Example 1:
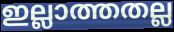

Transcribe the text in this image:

ഇല്ലാത്തതല്ല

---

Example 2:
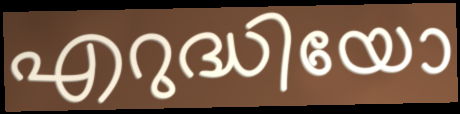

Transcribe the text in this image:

എറുദ്ധിയോ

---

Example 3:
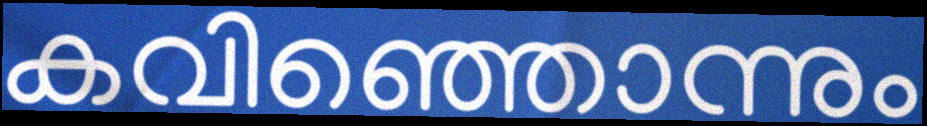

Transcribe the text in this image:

കവിഞ്ഞൊന്നും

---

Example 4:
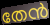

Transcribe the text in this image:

തേൻ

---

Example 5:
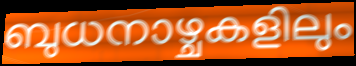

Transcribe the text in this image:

ബുധനാഴ്ചകളിലും